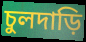
চুলদাড়ি